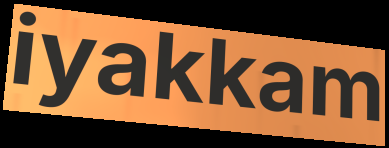
iyakkam